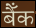
बैँक